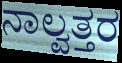
ನಾಲ್ವತ್ತರ